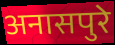
अनासपुरे